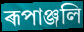
ৰূপাঞ্জলি